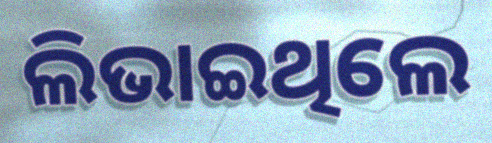
ଲିଭାଇଥିଲେ